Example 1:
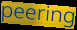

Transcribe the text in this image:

peering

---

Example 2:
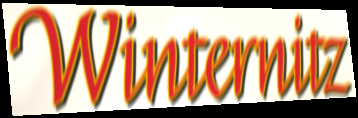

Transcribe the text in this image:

Winternitz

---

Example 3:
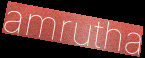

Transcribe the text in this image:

amrutha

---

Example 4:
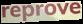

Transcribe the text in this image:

reprove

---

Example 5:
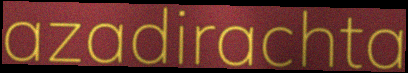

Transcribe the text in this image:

azadirachta